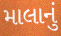
માલાનું